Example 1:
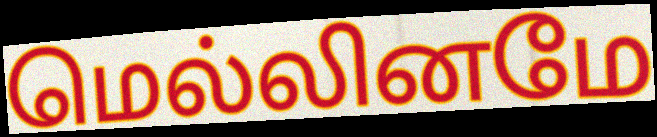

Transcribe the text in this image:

மெல்லினமே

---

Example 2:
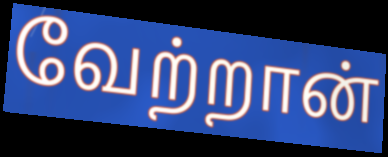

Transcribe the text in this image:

வேற்றான்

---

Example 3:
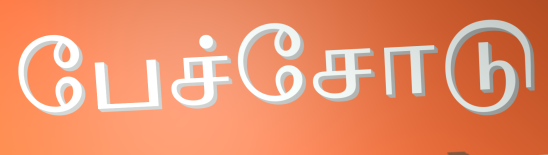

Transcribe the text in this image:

பேச்சோடு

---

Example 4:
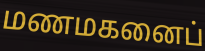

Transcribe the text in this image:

மணமகனைப்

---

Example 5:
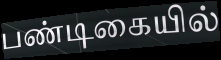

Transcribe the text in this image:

பண்டிகையில்